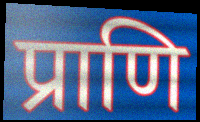
प्राणि